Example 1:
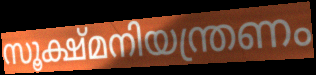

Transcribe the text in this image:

സൂക്ഷ്മനിയന്ത്രണം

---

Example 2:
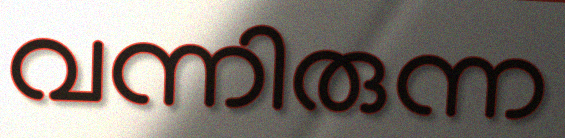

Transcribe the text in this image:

വന്നിരുന്ന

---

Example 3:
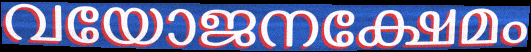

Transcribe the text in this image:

വയോജനക്ഷേമം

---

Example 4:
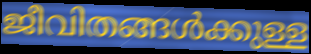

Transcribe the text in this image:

ജീവിതങ്ങൾക്കുള്ള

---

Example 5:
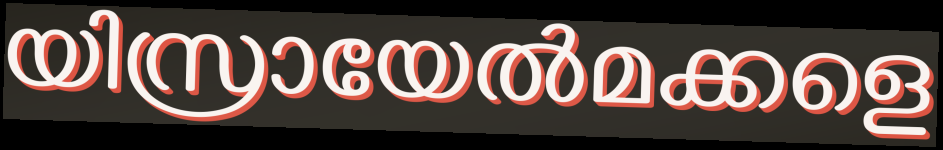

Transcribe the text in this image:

യിസ്രായേൽമക്കളെ